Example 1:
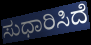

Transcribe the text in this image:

ಸುಧಾರಿಸಿದೆ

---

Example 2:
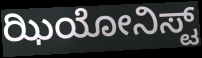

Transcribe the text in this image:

ಝಿಯೋನಿಸ್ಟ್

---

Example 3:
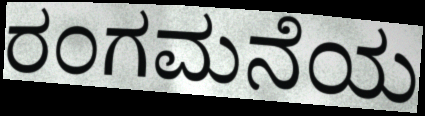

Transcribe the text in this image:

ರಂಗಮನೆಯ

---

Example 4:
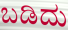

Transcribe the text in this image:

ಬಡಿದು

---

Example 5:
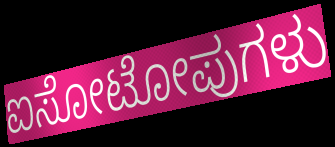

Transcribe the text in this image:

ಐಸೋಟೋಪುಗಳು